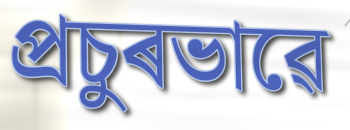
প্ৰচুৰভাৱে